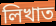
লিখাত